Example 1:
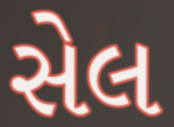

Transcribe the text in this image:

સેલ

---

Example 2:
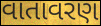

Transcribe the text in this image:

વાતાવરણ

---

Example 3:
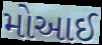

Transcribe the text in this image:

મોઆઈ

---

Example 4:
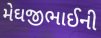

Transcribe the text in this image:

મેઘજીભાઈની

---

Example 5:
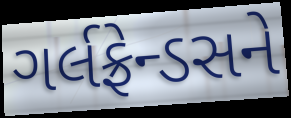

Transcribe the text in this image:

ગર્લફ્રેન્ડસને